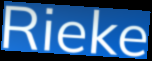
Rieke